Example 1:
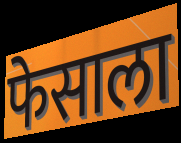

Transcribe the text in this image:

फेसाला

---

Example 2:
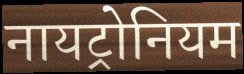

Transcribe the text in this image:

नायट्रोनियम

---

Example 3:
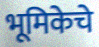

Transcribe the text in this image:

भूमिकेचे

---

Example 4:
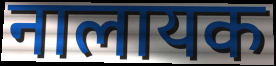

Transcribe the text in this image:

नालायक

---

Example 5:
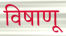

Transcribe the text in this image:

विषाणू